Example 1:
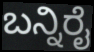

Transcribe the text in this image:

ಬನ್ನಿರೈ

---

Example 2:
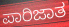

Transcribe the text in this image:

ಪಾರಿಜಾತ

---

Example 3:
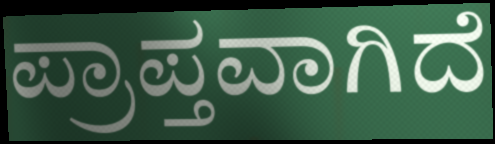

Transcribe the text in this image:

ಪ್ರಾಪ್ತವಾಗಿದೆ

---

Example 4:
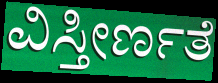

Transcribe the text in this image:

ವಿಸ್ತೀರ್ಣತೆ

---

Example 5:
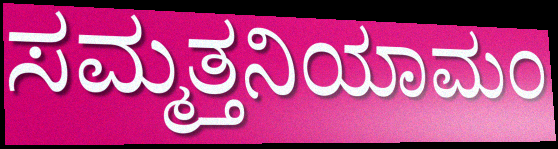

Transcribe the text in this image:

ಸಮ್ಮತ್ತನಿಯಾಮಂ